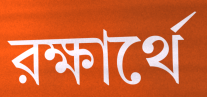
রক্ষার্থে